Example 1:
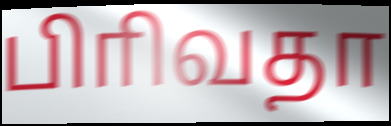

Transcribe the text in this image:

பிரிவதா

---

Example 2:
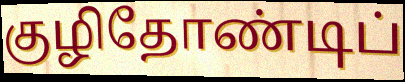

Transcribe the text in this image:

குழிதோண்டிப்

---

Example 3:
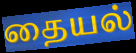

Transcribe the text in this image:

தையல்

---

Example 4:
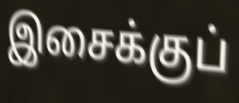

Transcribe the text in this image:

இசைக்குப்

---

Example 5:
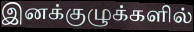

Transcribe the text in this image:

இனக்குழுக்களில்